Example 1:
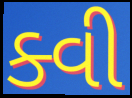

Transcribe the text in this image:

ક્વી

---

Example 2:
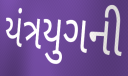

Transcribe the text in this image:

યંત્રયુગની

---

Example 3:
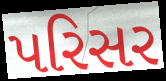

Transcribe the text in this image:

પરિસર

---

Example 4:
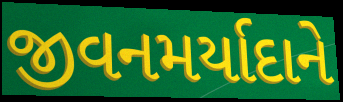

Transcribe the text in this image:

જીવનમર્યાદાને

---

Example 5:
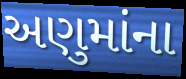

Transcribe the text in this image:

અણુમાંના